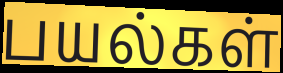
பயல்கள்